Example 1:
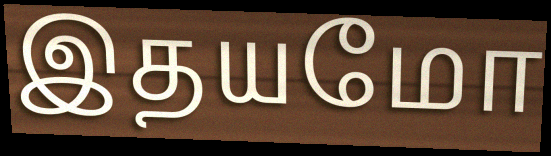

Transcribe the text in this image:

இதயமோ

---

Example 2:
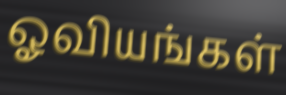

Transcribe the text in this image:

ஓவியங்கள்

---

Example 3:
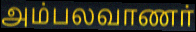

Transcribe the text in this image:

அம்பலவாணர்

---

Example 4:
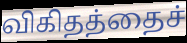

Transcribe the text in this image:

விகிதத்தைச்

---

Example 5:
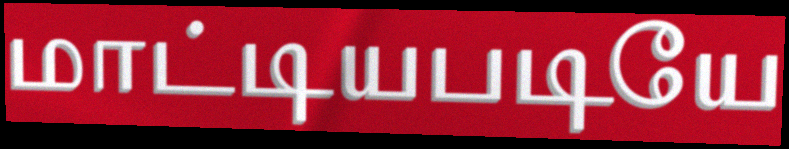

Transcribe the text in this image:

மாட்டியபடியே